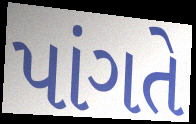
પાંગતે